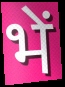
भें